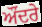
ਔਂਦਰੇ